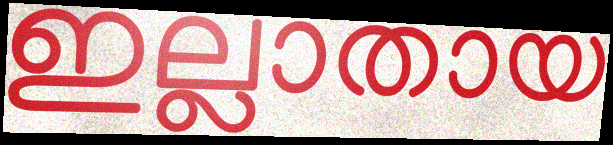
ഇല്ലാതായ